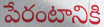
పేరంటానికి